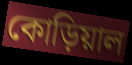
কোড়িয়াল